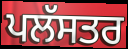
ਪਲੱਸਤਰ